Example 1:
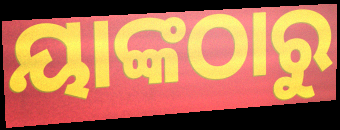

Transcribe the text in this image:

ୟାଙ୍କଠାରୁ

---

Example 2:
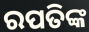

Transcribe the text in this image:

ରପତିଙ୍କ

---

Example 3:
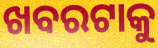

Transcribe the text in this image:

ଖବରଟାକୁ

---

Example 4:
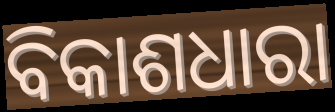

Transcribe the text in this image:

ବିକାଶଧାରା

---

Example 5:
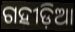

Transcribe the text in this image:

ଗହୀଡ଼ିଆ